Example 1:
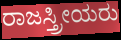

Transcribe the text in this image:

ರಾಜಸ್ತ್ರೀಯರು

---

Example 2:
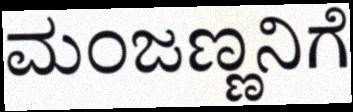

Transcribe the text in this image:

ಮಂಜಣ್ಣನಿಗೆ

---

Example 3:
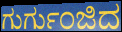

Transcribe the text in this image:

ಗುರ್ಗುಂಜಿದ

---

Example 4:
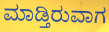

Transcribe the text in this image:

ಮಾಡ್ತಿರುವಾಗ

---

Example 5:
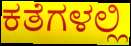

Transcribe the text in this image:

ಕತೆಗಳಲ್ಲಿ